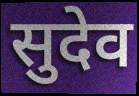
सुदेव